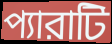
প্যারাটি